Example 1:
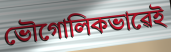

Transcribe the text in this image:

ভৌগোলিকভাৱেই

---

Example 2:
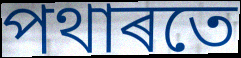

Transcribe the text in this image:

পথাৰতে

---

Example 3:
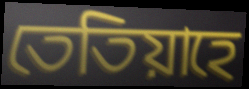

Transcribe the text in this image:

তেতিয়াহে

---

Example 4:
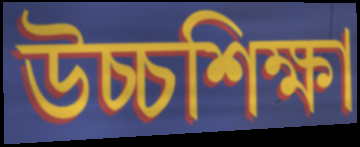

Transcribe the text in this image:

উচ্চশিক্ষা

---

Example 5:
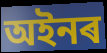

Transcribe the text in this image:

অইনৰ